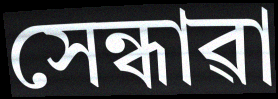
সেন্ধাৱা